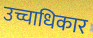
उच्चाधिकार